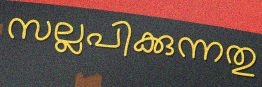
സല്ലപിക്കുന്നതു